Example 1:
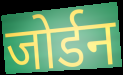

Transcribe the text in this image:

जोर्डन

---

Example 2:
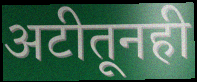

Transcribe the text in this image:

अटीतूनही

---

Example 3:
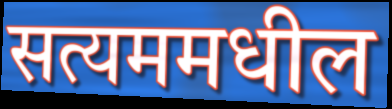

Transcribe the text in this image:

सत्यममधील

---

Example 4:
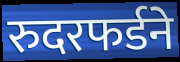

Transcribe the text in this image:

रुदरफर्डने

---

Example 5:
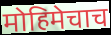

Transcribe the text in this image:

मोहिमेचाच